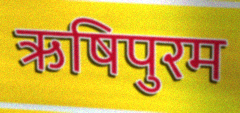
ऋषिपुरम